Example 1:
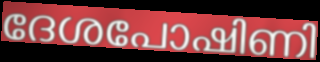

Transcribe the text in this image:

ദേശപോഷിണി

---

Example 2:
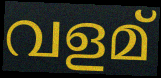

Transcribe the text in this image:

വളമ്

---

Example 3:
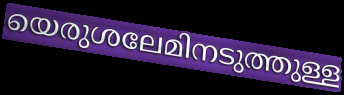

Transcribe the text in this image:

യെരുശലേമിനടുത്തുള്ള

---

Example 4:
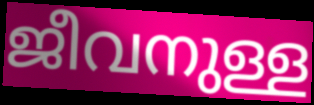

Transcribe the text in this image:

ജീവനുള്ള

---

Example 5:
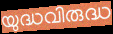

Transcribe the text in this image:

യുദ്ധവിരുദ്ധ